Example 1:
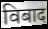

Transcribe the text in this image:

विबाद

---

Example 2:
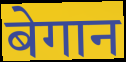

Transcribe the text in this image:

बेगान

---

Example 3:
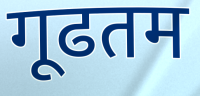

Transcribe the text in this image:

गूढतम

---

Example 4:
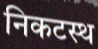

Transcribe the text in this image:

निकटस्‍थ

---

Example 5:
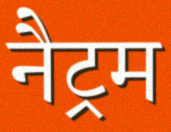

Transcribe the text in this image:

नैट्रम